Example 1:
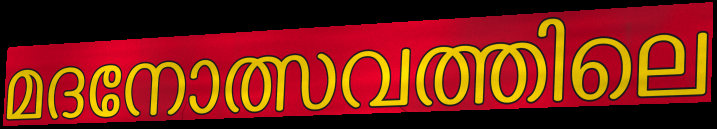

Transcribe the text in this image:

മദനോത്സവത്തിലെ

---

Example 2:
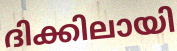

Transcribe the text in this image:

ദിക്കിലായി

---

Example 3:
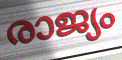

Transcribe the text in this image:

രാജ്യം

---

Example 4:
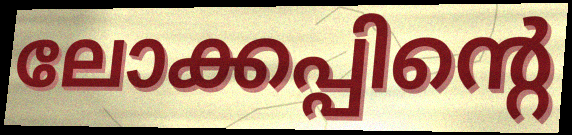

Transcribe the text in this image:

ലോക്കപ്പിന്റെ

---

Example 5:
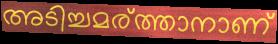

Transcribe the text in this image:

അടിച്ചമര്ത്താനാണ്